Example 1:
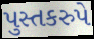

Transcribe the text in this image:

પુસ્તકરુપે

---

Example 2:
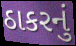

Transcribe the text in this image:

ઠાકરનું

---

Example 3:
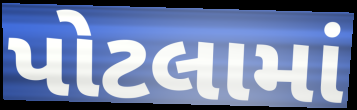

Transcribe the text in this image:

પોટલામાં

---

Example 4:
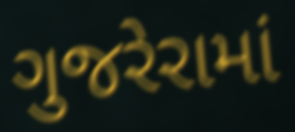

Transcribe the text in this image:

ગુજરેરામાં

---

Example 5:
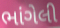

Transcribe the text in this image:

ભાંગેલી